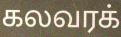
கலவரக்